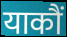
याकौं